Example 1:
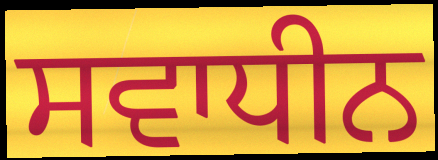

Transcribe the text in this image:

ਸਵਾਧੀਨ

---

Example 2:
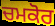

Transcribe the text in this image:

ਚਮਕੋਰ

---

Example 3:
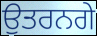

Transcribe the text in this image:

ਉਤਰਨਗੇ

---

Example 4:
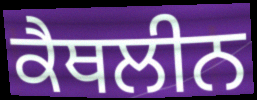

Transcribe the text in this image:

ਕੈਥਲੀਨ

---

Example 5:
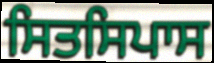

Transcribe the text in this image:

ਸਿਤਸਿਪਾਸ